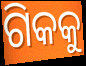
ଗିକକୁ